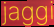
jaggi